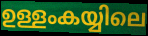
ഉള്ളംകയ്യിലെ